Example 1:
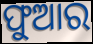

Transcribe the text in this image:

ଫୁଆର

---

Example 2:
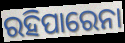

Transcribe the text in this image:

ରହିପାରେନା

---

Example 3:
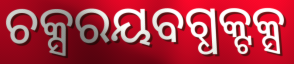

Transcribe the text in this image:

ଚକ୍ସରୟବଗ୍ଧକ୍ଟକ୍ସ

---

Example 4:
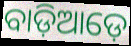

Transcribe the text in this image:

ବାଡ଼ିଆଡ଼େ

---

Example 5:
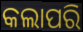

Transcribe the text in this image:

କଲାପରି